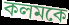
কলমকে